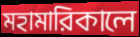
মহামারিকালে